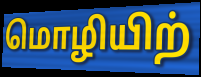
மொழியிற்